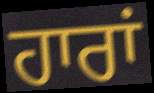
ਹਾਰਾਂ